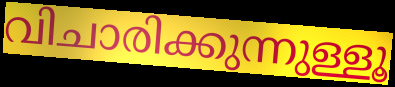
വിചാരിക്കുന്നുള്ളൂ